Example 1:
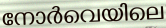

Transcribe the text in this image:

നോർവെയിലെ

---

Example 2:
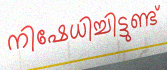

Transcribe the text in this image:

നിഷേധിച്ചിട്ടുണ്ട്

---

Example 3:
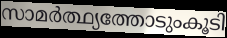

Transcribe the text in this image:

സാമർത്ഥ്യത്തോടുംകൂടി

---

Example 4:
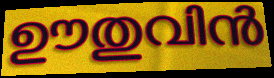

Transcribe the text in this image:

ഊതുവിൻ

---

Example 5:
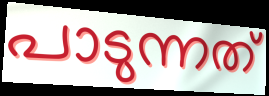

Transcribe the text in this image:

പാടുന്നത്